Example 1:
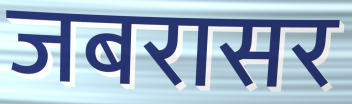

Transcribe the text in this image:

जबरासर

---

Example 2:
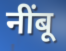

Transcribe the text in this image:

नींबू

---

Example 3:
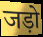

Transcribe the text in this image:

जड़ो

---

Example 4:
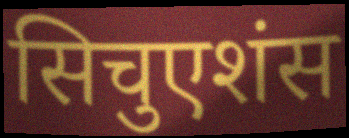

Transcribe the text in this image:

सिचुएशंस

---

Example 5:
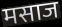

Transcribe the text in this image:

मसाज